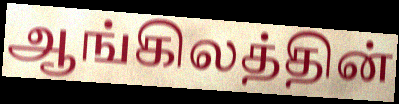
ஆங்கிலத்தின்